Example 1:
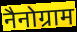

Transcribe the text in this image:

नैनोग्राम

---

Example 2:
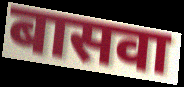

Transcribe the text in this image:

बासवा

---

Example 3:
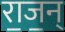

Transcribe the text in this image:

रा॒ज॒न्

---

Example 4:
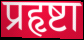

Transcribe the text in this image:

प्रहृष्टा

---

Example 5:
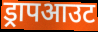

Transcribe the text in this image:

ड्रापआउट